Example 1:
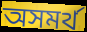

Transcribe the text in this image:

অসমর্থ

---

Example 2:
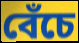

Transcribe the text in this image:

বেঁচে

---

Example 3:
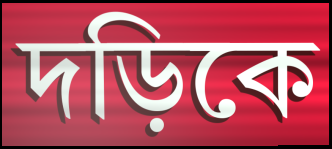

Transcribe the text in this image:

দড়িকে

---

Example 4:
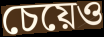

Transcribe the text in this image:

চেয়েও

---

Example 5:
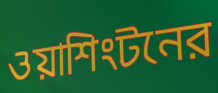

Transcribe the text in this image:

ওয়াশিংটনের